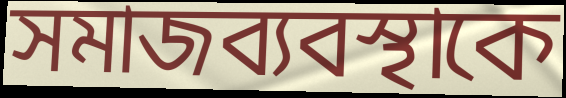
সমাজব্যবস্থাকে